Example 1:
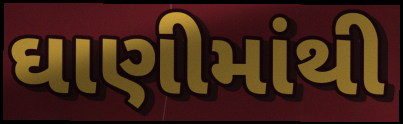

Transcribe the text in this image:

ઘાણીમાંથી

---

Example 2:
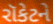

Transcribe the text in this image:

રૉકેટને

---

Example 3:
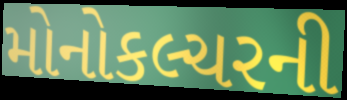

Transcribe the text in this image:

મોનોકલ્ચરની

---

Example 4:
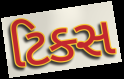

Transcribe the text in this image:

ટિક્સ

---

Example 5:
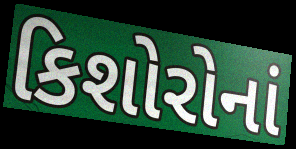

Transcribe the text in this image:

કિશોરોનાં